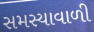
સમસ્યાવાળી